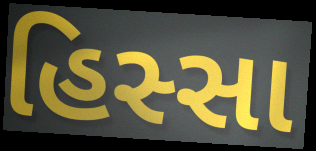
હિસ્સા